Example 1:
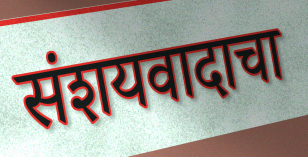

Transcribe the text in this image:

संशयवादाचा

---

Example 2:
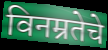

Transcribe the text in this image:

विनम्रतेचे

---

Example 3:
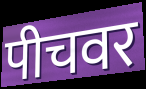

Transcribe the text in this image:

पीचवर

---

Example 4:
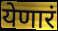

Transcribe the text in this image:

येणारं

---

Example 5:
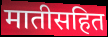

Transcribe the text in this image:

मातीसहित